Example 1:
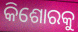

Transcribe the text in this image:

କିଶୋରକୁ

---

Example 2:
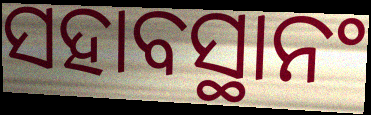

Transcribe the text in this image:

ସହାବସ୍ଥାନଂ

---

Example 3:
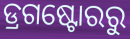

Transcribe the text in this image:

ଡ୍ରଗଷ୍ଟୋରରୁ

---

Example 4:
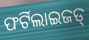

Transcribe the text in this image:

ଫର୍ଟିଲାଇଜଡ୍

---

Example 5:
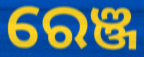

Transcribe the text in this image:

ରେଞ୍ଜ